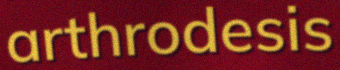
arthrodesis